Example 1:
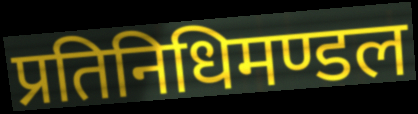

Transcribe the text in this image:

प्रतिनिधिमण्डल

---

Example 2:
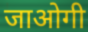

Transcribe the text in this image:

जाओगी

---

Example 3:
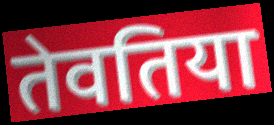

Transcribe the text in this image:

तेवतिया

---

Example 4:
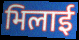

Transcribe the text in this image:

भिलाई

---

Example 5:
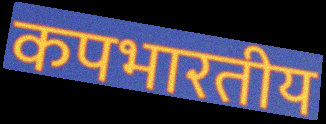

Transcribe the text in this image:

कपभारतीय